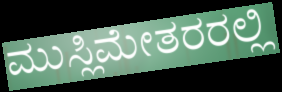
ಮುಸ್ಲಿಮೇತರರಲ್ಲಿ